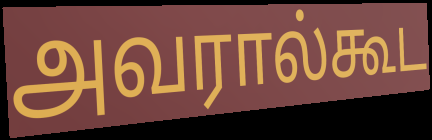
அவரால்கூட